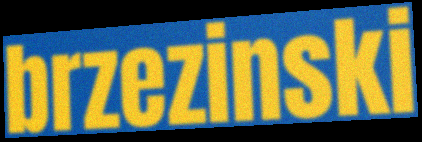
brzezinski